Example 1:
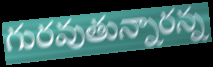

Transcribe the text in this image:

గురవుతున్నారన్న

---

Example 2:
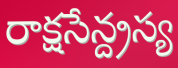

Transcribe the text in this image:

రాక్షసేన్ద్రస్య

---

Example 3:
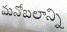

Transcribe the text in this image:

మనోబలాన్ని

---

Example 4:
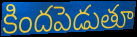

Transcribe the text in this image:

కిందపెడుతూ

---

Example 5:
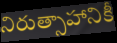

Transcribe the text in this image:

నిరుత్సాహానికీ